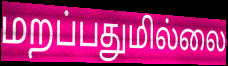
மறப்பதுமில்லை